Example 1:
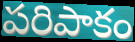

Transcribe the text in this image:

పరిపాకం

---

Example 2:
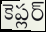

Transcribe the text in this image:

కెప్లర్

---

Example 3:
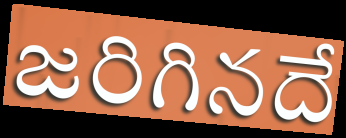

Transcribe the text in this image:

జరిగినదే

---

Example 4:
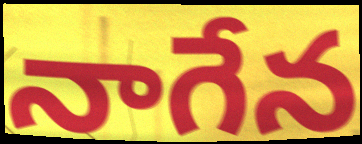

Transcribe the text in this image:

నాగేన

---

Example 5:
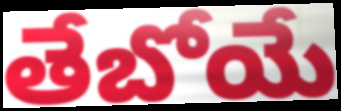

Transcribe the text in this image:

తేబోయే